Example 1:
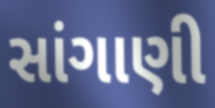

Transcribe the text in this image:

સાંગાણી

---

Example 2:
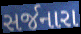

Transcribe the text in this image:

સર્જનારા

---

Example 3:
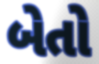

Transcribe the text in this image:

બેતો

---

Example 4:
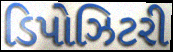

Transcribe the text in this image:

ડિપોઝિટરી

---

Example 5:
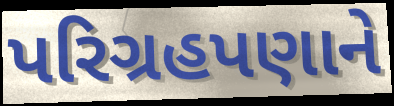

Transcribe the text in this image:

પરિગ્રહપણાને